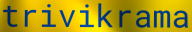
trivikrama